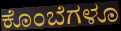
ಕೊಂಬೆಗಳೂ